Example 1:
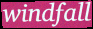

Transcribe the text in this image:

windfall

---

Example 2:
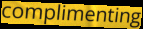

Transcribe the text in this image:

complimenting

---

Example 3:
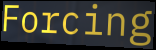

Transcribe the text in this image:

Forcing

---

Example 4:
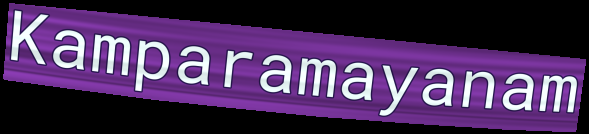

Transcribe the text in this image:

Kamparamayanam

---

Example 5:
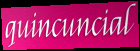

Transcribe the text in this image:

quincuncial